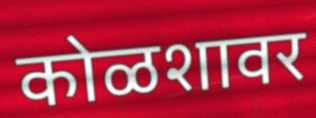
कोळशावर